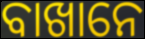
ବାଖାନେ